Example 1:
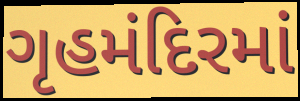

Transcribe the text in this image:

ગૃહમંદિરમાં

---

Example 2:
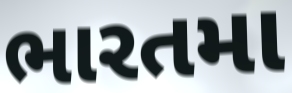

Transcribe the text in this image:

ભારતમા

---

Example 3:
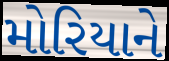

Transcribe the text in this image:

મોરિયાને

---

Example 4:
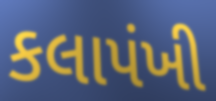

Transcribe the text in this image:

કલાપંખી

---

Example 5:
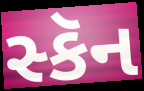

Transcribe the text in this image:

સ્કૅન